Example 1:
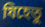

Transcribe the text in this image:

যিহেতু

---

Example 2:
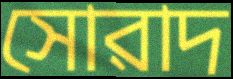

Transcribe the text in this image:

সোৱাদ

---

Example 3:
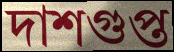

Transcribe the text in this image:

দাশগুপ্ত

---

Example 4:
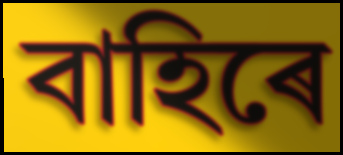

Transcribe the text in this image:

বাহিৰে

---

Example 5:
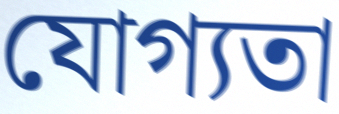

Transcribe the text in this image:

যোগ্যতা